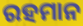
ରହମାନ